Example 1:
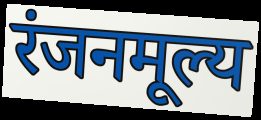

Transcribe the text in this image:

रंजनमूल्य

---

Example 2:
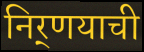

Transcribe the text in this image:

निर्णयाची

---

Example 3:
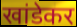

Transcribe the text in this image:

खांडेकर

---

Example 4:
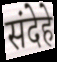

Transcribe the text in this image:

संदेहे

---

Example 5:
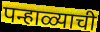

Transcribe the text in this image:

पन्हाळ्याची